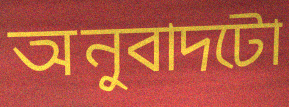
অনুবাদটো